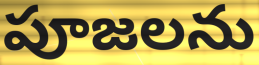
పూజలను